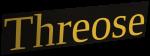
Threose